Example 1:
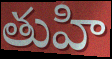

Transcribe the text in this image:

తుహి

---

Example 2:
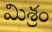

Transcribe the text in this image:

మిశ్రం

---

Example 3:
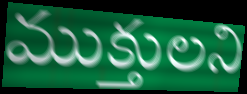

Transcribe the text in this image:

ముక్తులని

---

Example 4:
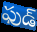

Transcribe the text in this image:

ఫుడ్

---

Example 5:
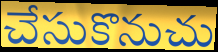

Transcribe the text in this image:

చేసుకొనుచు